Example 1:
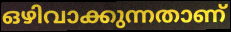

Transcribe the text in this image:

ഒഴിവാക്കുന്നതാണ്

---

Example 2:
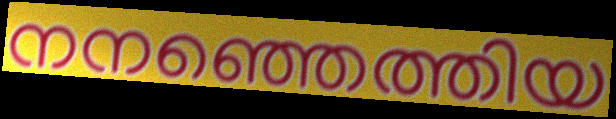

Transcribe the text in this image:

നനഞ്ഞെത്തിയ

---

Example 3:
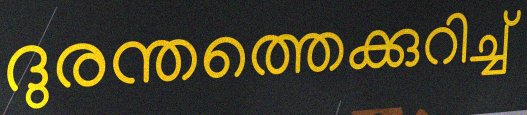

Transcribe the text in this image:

ദുരന്തത്തെക്കുറിച്ച്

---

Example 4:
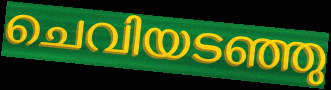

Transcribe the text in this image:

ചെവിയടഞ്ഞു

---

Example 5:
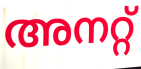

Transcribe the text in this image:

അനറ്റ്